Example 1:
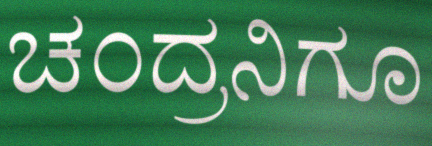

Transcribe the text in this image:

ಚಂದ್ರನಿಗೂ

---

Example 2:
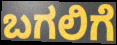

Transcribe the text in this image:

ಬಗಲಿಗೆ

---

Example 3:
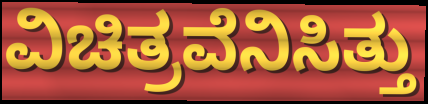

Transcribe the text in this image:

ವಿಚಿತ್ರವೆನಿಸಿತ್ತು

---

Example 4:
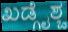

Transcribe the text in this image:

ಖಡ್ಗೈಶ್ಚ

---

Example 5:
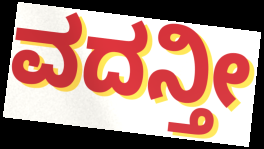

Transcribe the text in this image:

ವದನ್ತೀ